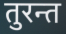
तुरन्त